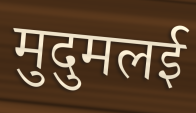
मुदुमलई